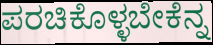
ಪರಚಿಕೊಳ್ಳಬೇಕೆನ್ನ